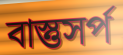
বাস্তুসর্প